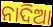
ନାଦିଆ